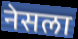
नेसला